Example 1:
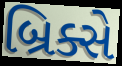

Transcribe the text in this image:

બ્રિક્સે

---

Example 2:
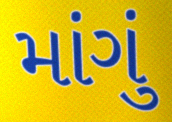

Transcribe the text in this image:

માંગું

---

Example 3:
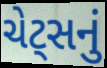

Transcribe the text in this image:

ચેટ્સનું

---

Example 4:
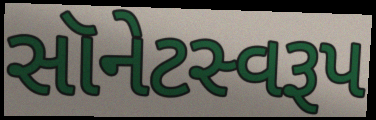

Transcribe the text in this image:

સૉનેટસ્વરૂપ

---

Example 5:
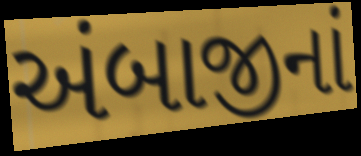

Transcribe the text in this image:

અંબાજીનાં